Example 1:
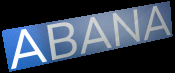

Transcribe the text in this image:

ABANA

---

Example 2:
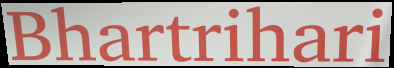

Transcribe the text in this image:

Bhartrihari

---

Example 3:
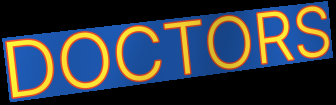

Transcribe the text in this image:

DOCTORS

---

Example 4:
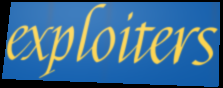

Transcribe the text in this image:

exploiters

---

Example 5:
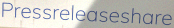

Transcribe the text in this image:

Pressreleaseshare